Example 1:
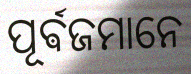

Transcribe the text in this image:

ପୂର୍ଵଜମାନେ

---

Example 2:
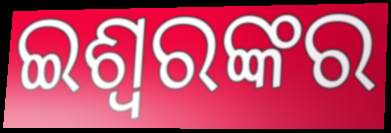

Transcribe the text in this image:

ଇଶ୍ୱରଙ୍କର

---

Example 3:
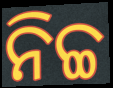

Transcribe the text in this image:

ନିଚ୍ଚ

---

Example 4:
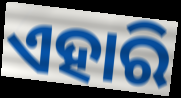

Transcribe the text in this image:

ଏହାରି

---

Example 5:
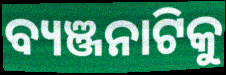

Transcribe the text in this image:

ବ୍ୟଞ୍ଜନାଟିକୁ